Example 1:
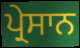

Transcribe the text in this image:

ਪ੍ਰੇਸਾਨ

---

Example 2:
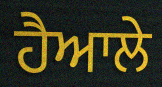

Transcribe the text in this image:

ਹੈਆਲੇ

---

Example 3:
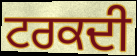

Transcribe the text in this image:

ਟਰਕਦੀ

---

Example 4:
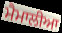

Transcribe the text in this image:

ਮੈਮਾਲੀਆ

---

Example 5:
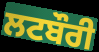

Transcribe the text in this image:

ਲਟਬੌਰੀ